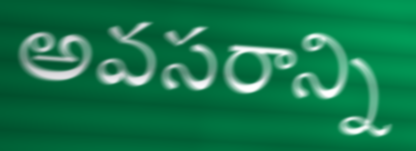
అవసరాన్ని